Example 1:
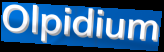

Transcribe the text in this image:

Olpidium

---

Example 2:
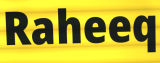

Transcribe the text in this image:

Raheeq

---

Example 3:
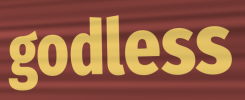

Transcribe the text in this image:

godless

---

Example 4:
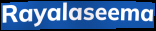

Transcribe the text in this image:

Rayalaseema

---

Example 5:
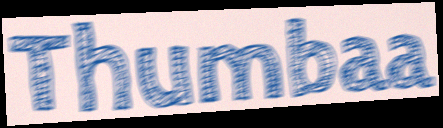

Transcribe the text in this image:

Thumbaa